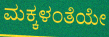
ಮಕ್ಕಳಂತೆಯೇ